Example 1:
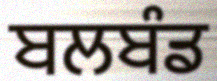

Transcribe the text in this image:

ਬਲਬੰਡ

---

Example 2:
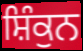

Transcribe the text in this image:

ਸ਼ਿੰਕੁਨ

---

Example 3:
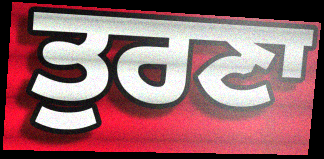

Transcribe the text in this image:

ਤੁਰਣਾ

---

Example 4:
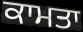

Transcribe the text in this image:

ਕਾਮਤਾ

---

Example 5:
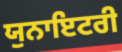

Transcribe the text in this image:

ਯੁਨਾਇਟਰੀ